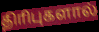
திரிபுகளால்